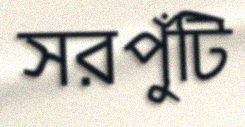
সরপুঁটি